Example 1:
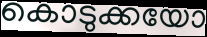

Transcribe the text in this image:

കൊടുക്കയോ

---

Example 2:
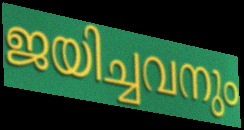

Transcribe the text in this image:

ജയിച്ചവനും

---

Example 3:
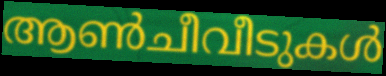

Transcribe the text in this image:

ആൺചീവീടുകൾ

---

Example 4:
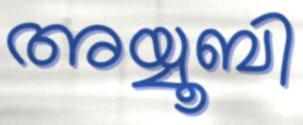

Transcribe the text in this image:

അയ്യൂബി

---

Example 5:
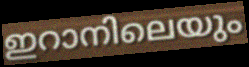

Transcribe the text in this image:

ഇറാനിലെയും